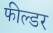
फील्डर